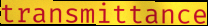
transmittance